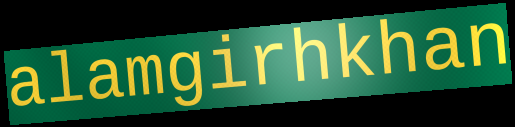
alamgirhkhan